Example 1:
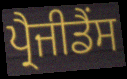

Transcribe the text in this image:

ਪ੍ਰੈਜੀਡੈਂਸ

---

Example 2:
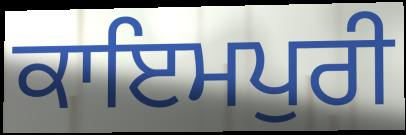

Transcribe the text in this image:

ਕਾਇਮਪੁਰੀ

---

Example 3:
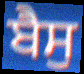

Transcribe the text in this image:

ਬੈਸੁ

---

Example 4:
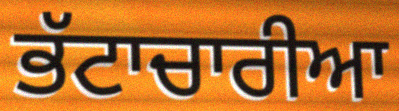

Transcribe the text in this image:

ਭੱਟਾਚਾਰੀਆ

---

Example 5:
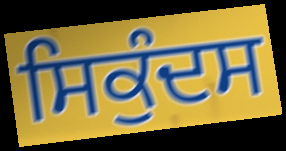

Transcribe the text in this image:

ਸਿਕੁੰਦਸ